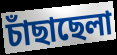
চাঁছাছেলা